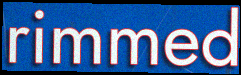
rimmed